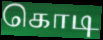
கொடி